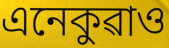
এনেকুৱাও